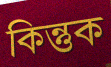
কিন্তুক